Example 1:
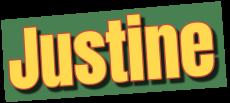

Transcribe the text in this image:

Justine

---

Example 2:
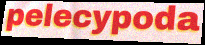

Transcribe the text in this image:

pelecypoda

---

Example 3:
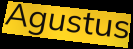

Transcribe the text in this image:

Agustus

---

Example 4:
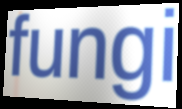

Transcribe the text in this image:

fungi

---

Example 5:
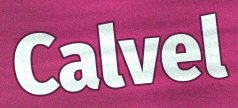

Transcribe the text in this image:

Calvel